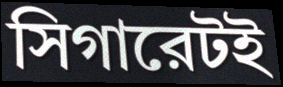
সিগারেটই